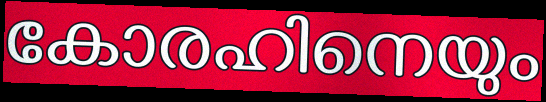
കോരഹിനെയും